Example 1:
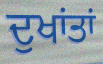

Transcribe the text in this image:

ਦੁਖਾਂਤਾਂ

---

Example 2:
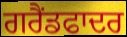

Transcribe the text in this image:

ਗਰੈਂਡਫਾਦਰ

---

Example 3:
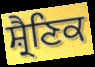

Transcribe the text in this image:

ਸ਼੍ਰੈਣਿਕ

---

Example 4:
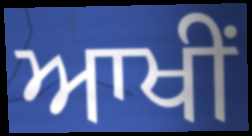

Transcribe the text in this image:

ਆਖੀਂ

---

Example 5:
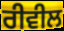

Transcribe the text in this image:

ਰੀਵੀਲ